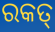
ରକତ୍